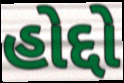
હોદ્દો